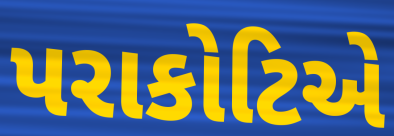
પરાકોટિએ